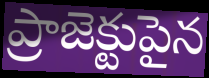
ప్రాజెక్టుపైన